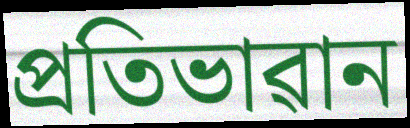
প্ৰতিভাৱান